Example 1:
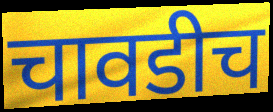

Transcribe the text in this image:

चावडीच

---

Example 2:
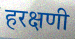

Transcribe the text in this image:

हरक्षणी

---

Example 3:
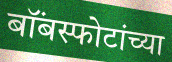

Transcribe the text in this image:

बॉंबस्फोटांच्या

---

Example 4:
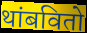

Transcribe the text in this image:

थांबवितो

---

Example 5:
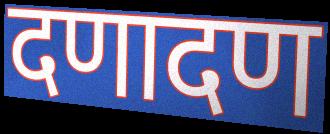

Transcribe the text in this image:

दणादण